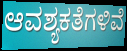
ಆವಶ್ಯಕತೆಗಳಿವೆ